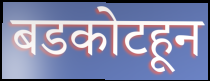
बडकोटहून